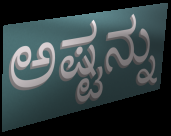
ಅಷ್ಟನ್ನು